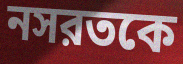
নসরতকে